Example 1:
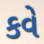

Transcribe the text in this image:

કવે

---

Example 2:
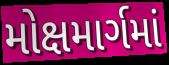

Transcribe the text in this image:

મોક્ષમાર્ગમાં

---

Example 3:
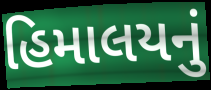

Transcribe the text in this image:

હિમાલયનું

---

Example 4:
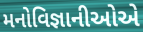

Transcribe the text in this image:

મનોવિજ્ઞાનીઓએ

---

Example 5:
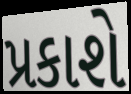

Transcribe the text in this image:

પ્રકાશે